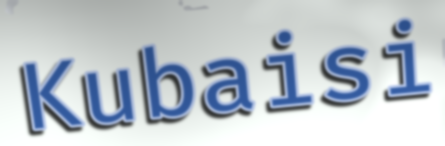
Kubaisi